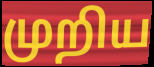
முறிய